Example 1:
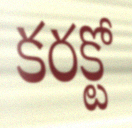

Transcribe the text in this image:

కరక్టో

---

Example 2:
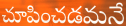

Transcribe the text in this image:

చూపించడమనే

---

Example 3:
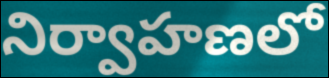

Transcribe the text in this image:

నిర్వాహణలో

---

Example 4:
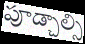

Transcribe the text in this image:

పూడ్చాల్సి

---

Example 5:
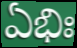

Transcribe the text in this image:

ఏభిః